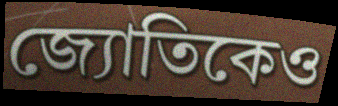
জ্যোতিকেও